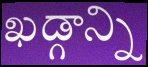
ఖడ్గాన్ని